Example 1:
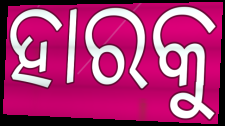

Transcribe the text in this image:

ହାରକୁ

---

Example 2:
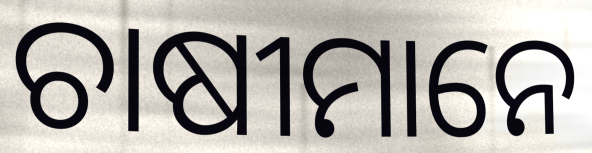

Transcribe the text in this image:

ଚାଷୀମାନେ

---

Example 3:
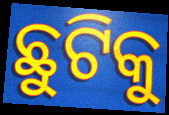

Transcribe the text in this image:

ଛୁଟିକୁ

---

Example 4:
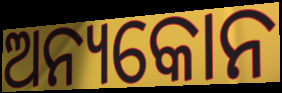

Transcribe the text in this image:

ଅନ୍ୟକୋନ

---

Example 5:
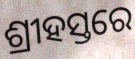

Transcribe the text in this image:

ଶ୍ରୀହସ୍ତରେ